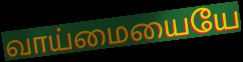
வாய்மையையே